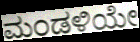
ಮಂಡಳಿಯೇ